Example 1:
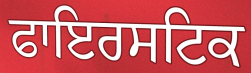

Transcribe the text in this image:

ਫਾਇਰਸਟਿਕ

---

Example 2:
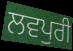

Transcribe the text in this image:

ਲਵਪੁਰੀ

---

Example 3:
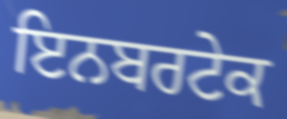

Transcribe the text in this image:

ਇਨਬਰਟੇਕ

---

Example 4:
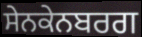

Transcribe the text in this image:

ਸੇਨਕੇਨਬਰਗ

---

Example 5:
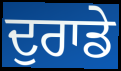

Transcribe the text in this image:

ਦੁਰਾਡੇ